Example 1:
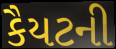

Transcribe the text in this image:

કૈયટની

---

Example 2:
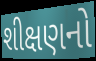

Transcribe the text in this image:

શીક્ષણનો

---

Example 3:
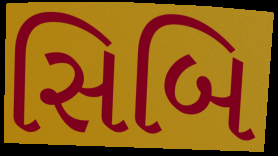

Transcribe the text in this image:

સિબિ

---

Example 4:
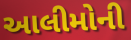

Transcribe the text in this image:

આલીમોની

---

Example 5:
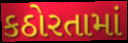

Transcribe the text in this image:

કઠોરતામાં